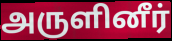
அருளினீர்